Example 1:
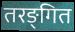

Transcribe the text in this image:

तरङ्गित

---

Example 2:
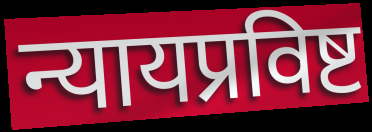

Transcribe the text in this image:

न्यायप्रविष्ट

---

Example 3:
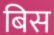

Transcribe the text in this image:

बिस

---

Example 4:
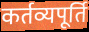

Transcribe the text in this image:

कर्तव्यपूर्ति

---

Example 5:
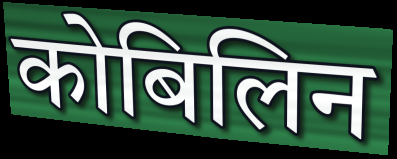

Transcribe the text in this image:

कोबिलिन